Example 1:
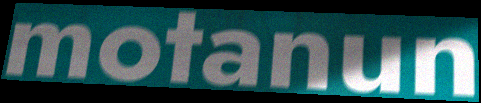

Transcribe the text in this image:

motanun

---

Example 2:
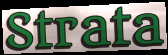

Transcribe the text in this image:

Strata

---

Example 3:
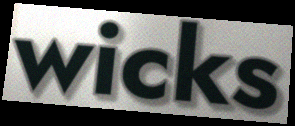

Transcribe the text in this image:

wicks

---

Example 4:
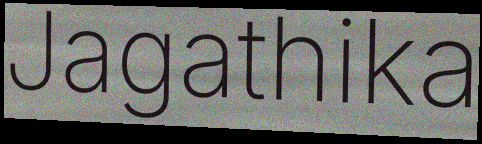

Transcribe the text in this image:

Jagathika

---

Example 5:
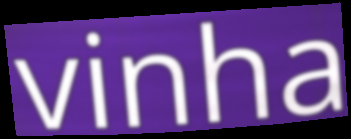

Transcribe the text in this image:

vinha